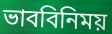
ভাববিনিময়